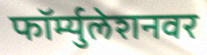
फॉर्म्युलेशनवर